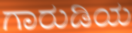
ಗಾರುಡಿಯ